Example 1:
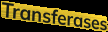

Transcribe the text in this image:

Transferases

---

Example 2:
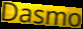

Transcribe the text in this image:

Dasmo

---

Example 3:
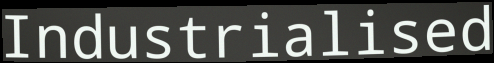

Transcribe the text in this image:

Industrialised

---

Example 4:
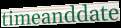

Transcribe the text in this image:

timeanddate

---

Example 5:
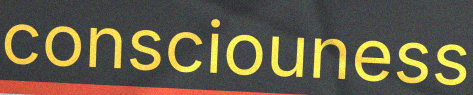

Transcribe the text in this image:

consciouness